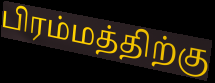
பிரம்மத்திற்கு